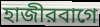
হাজীরবাগে